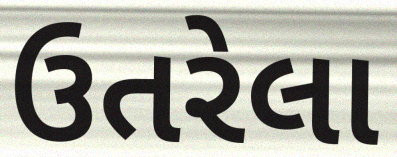
ઉતરેલા